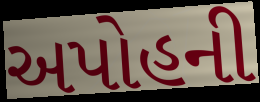
અપોહની